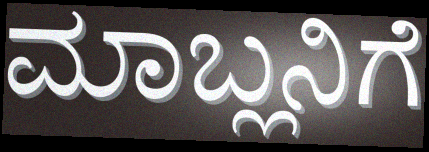
ಮಾಬ್ಲನಿಗೆ